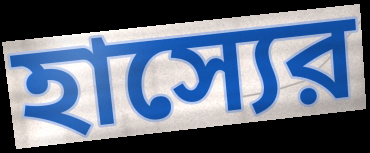
হাস্যের